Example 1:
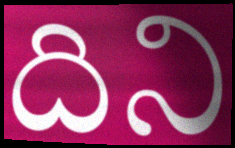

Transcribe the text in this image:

దిని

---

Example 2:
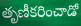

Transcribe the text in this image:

తృణీకరించాడో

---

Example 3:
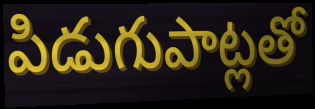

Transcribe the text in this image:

పిడుగుపాట్లతో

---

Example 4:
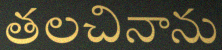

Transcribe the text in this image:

తలచినాను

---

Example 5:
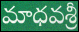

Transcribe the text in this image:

మాధవశ్రీ